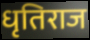
धृतिराज